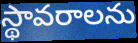
స్థావరాలను